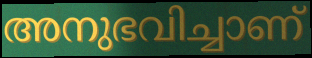
അനുഭവിച്ചാണ്